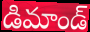
డిమాండ్